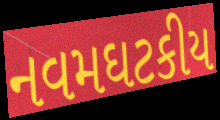
નવમઘટકીય